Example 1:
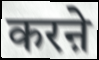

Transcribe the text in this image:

करऩे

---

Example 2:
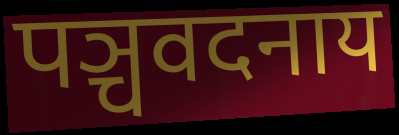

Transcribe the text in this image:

पञ्चवदनाय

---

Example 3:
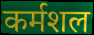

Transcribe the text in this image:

कर्मशल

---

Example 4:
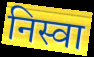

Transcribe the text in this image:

निस्वा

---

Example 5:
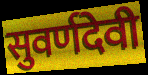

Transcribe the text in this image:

सुवर्णदेवी